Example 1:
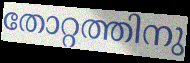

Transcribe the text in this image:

തോറ്റത്തിനു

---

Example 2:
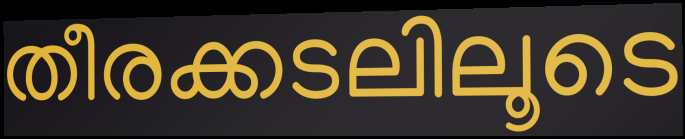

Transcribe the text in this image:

തീരക്കടലിലൂടെ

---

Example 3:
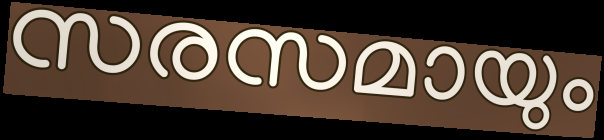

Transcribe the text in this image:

സരസമായും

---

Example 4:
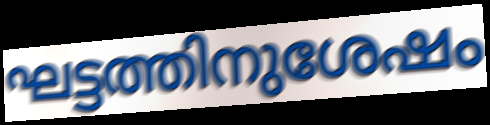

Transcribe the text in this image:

ഘട്ടത്തിനുശേഷം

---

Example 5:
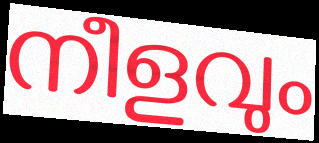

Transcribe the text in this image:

നീളവും